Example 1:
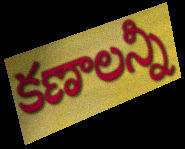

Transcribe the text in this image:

కణాలన్నీ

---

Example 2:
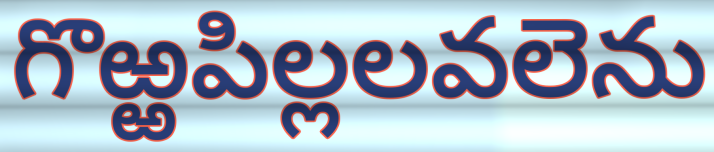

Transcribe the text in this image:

గొఱ్ఱపిల్లలవలెను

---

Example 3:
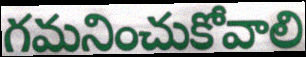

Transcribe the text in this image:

గమనించుకోవాలి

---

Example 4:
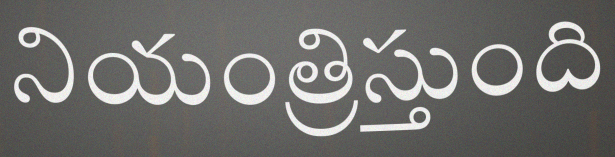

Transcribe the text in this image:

నియంత్రిస్తుంది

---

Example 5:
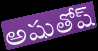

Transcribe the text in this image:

అషుతోష్